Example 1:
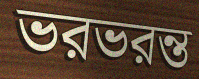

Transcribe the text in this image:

ভরভরন্ত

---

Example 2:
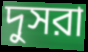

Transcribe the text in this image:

দুসরা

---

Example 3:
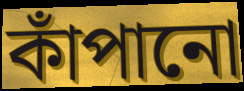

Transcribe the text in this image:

কাঁপানো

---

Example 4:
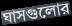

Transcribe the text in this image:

ঘাসগুলোর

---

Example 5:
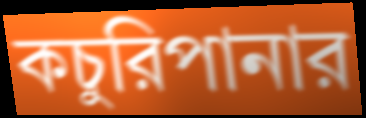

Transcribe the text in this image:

কচুরিপানার